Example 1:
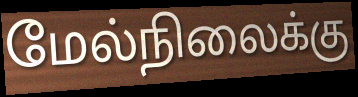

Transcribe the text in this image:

மேல்நிலைக்கு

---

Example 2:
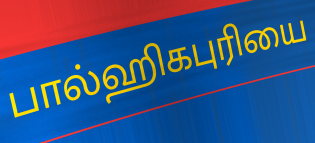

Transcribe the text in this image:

பால்ஹிகபுரியை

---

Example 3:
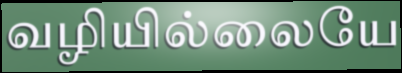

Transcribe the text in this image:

வழியில்லையே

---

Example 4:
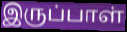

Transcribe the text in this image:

இருப்பாள்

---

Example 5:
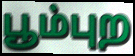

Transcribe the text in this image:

பூம்புற